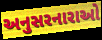
અનુસરનારાઓ